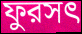
ফুরসৎ